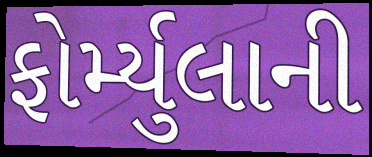
ફોર્મ્યુલાની